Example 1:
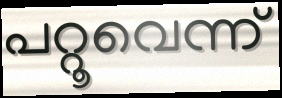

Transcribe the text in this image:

പറ്റൂവെന്ന്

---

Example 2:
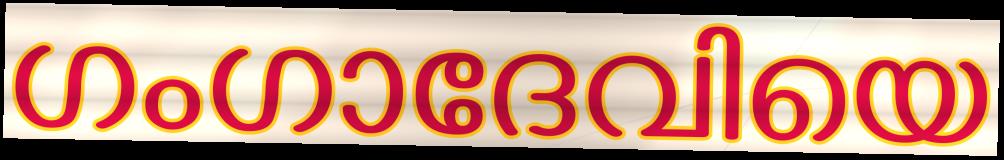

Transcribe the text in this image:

ഗംഗാദേവിയെ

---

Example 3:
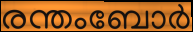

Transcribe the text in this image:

രന്തംബോർ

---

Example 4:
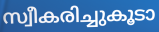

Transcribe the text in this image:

സ്വീകരിച്ചുകൂടാ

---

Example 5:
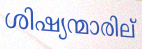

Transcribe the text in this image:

ശിഷ്യന്മാരില്